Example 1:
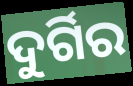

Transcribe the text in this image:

ଦୁର୍ଗିର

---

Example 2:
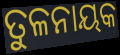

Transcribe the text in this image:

ତୁଳନାୟକ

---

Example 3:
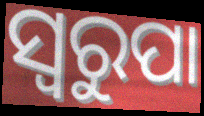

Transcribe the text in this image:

ସ୍ୱରୁପା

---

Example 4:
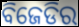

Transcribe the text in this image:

ବିଜେଡିର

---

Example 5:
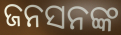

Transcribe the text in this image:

ଜନସନଙ୍କ